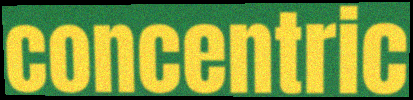
concentric